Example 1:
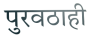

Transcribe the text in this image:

पुरवठाही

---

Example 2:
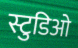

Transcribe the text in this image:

स्टुडिओ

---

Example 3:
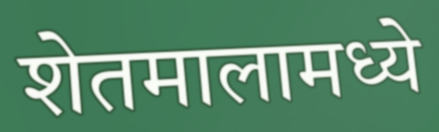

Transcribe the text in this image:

शेतमालामध्ये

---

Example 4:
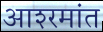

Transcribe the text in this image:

आश्रमांत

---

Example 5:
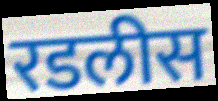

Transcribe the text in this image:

रडलीस